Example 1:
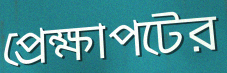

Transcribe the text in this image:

প্রেক্ষাপটের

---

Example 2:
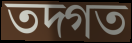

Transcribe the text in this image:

তদ্গত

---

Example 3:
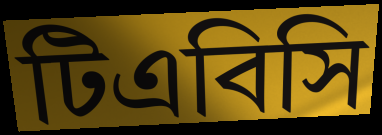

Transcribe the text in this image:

টিএবিসি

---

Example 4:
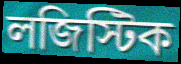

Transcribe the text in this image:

লজিস্টিক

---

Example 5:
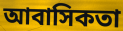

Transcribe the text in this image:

আবাসিকতা